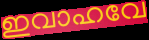
ഇവാഹവേ